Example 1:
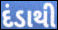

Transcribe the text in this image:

દંડાથી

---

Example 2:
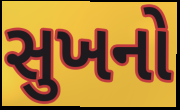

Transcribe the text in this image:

સુખનો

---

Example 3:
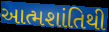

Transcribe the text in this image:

આત્મશાંતિથી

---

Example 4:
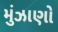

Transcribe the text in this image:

મુંઝાણો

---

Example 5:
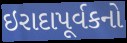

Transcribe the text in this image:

ઇરાદાપૂર્વકનો